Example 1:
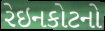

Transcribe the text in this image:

રેઇનકોટનો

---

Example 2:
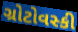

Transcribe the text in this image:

ગ્રોટોવસ્કી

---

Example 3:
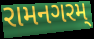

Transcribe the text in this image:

રામનગરમ્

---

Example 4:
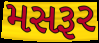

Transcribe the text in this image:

મસરૂર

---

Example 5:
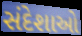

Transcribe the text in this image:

સંદેશાઓ